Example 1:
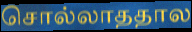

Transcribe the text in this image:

சொல்லாததால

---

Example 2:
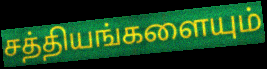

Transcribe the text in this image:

சத்தியங்களையும்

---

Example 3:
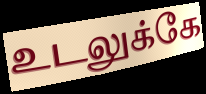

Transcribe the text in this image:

உடலுக்கே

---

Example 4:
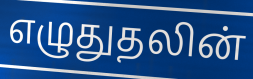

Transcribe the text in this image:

எழுதுதலின்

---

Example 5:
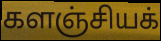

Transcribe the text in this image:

களஞ்சியக்